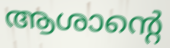
ആശാന്റെ